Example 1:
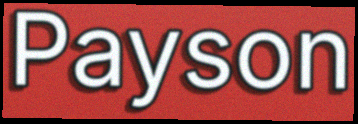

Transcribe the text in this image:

Payson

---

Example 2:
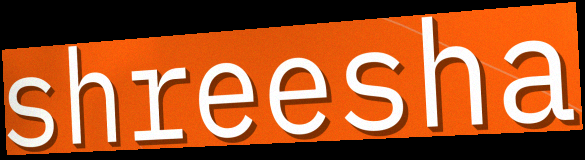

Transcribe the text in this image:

shreesha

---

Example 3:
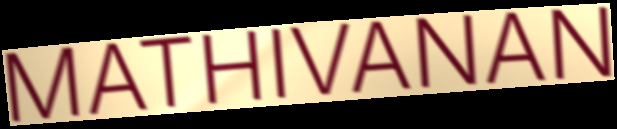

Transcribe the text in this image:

MATHIVANAN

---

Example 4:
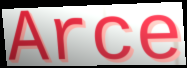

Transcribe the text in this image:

Arce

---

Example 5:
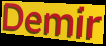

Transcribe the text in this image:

Demir